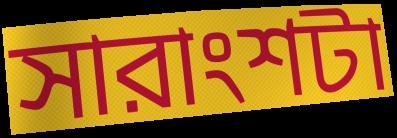
সারাংশটা